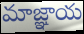
మాజ్ఞాయ